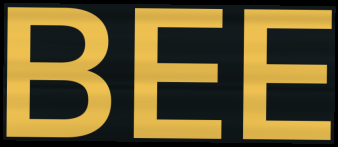
BEE